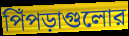
পিঁপড়াগুলোর